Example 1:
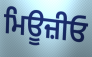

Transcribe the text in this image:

ਮਿਊਜ਼ੀਓ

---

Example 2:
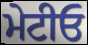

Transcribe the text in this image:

ਮੇਟੀਓ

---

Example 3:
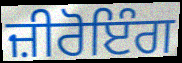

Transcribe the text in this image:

ਜ਼ੀਰੋਇੰਗ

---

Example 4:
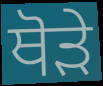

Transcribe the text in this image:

ਥੋਡ਼ੇ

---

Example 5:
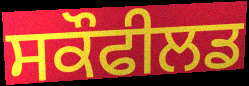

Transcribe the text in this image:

ਸਕੌਫੀਲਡ